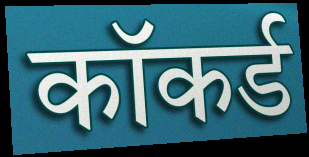
कॉकर्ड